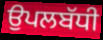
ਉਪਲਬੱਧੀ